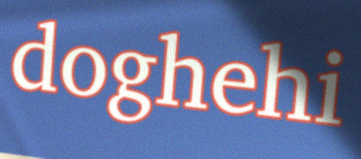
doghehi